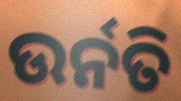
ଉର୍ନତି